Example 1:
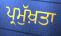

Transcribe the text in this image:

ਪ੍ਰਮੁੱਖ਼ਤਾ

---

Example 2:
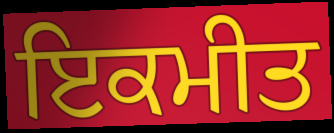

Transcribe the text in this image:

ਇਕਮੀਤ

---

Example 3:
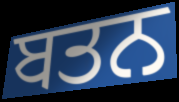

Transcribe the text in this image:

ਬਤਨ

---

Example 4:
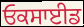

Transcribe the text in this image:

ਓਕਸਾਈਡ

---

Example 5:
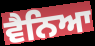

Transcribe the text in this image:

ਵੈਨਿਆ